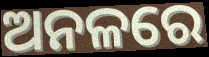
ଅନଳରେ